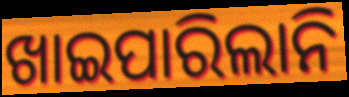
ଖାଇପାରିଲାନି